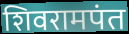
शिवरामपंत